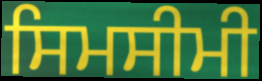
ਸਿਮਸੀਮੀ